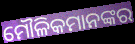
ମୌଳିକମାନଙ୍କର